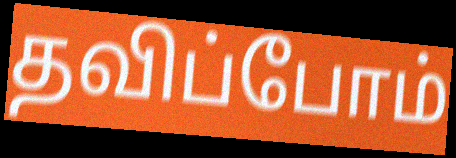
தவிப்போம்